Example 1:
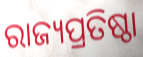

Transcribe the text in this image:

ରାଜ୍ୟପ୍ରତିଷ୍ଠା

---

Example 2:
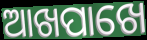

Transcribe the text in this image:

ଆଖପାଖେ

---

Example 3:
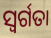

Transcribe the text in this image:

ସ୍ବର୍ଗତା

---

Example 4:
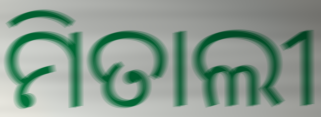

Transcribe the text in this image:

ମିତାଲୀ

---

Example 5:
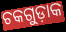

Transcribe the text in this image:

ଚକଗୁଡ଼ାକ